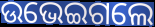
ଉଭେଇଗଲେ